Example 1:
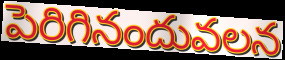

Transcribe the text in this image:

పెరిగినందువలన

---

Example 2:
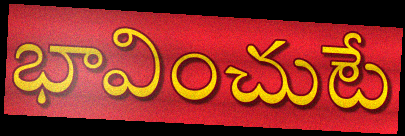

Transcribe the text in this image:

భావించుటే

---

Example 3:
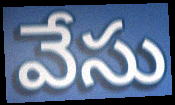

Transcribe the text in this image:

వేసు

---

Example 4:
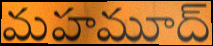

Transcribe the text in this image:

మహమూద్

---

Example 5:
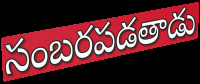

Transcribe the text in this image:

సంబరపడతాడు